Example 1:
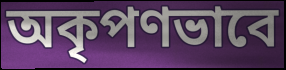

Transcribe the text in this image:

অকৃপণভাবে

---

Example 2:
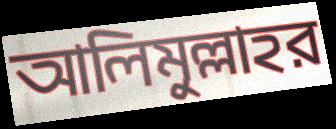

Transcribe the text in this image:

আলিমুল্লাহর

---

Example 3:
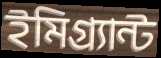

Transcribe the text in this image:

ইমিগ্র্যান্ট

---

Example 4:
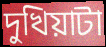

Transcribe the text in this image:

দুখিয়াটা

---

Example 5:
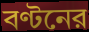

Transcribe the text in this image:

বণ্টনের